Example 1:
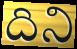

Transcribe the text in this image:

దిని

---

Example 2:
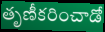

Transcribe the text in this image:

తృణీకరించాడో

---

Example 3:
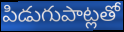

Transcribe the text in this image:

పిడుగుపాట్లతో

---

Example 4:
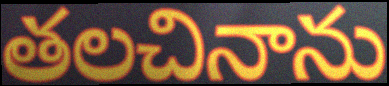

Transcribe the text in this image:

తలచినాను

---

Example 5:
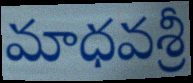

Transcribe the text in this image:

మాధవశ్రీ